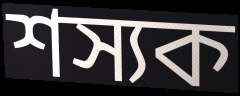
শস্যক